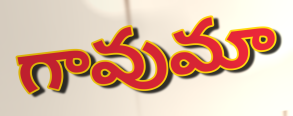
గావుమా